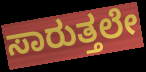
ಸಾರುತ್ತಲೇ